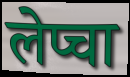
लेप्चा